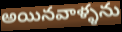
అయినవాళ్ళను